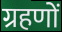
ग्रहणों